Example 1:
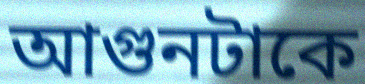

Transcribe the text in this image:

আগুনটাকে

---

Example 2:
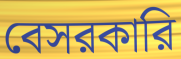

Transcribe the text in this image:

বেসরকারি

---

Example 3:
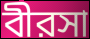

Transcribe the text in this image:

বীরসা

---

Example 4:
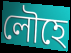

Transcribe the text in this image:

লৌহে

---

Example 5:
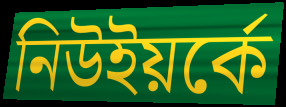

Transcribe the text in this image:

নিউইয়র্কে